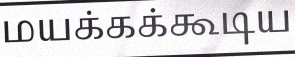
மயக்கக்கூடிய